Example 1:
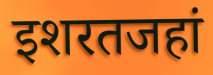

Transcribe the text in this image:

इशरतजहां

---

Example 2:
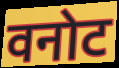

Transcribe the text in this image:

वनोट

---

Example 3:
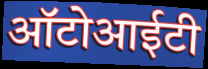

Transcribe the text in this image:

ऑटोआईटी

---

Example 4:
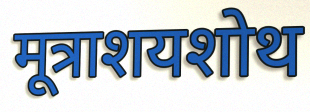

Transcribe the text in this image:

मूत्राशयशोथ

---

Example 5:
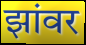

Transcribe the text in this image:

झांवर